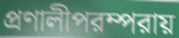
প্রণালীপরম্পরায়